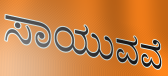
ಸಾಯುವವೆ